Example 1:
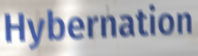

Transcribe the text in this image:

Hybernation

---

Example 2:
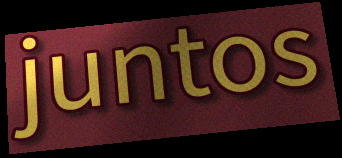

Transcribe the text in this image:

juntos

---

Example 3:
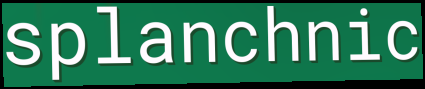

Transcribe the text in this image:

splanchnic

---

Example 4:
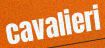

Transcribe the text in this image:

cavalieri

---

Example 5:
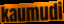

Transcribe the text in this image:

kaumudi